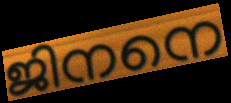
ജിനനെ